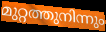
മുറ്റത്തുനിന്നും